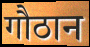
गौठान